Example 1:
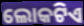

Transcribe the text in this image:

ଲୋକଟିଏ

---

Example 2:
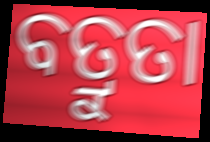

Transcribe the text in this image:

ବତ୍ରୁତା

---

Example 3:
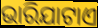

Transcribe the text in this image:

ଭାରିଯାଟାଏ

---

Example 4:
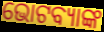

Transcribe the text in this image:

ଭୋଟବ୍ୟାଙ୍କ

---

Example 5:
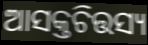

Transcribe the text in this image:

ଆସକ୍ତଚିତ୍ତସ୍ୟ